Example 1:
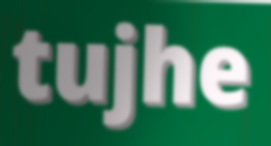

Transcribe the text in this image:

tujhe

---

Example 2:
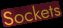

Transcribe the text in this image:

Sockets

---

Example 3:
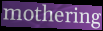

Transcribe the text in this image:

mothering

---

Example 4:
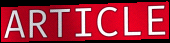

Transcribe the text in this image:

ARTICLE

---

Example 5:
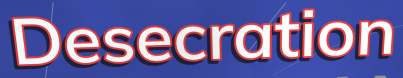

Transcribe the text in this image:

Desecration